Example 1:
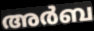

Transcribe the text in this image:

അർബ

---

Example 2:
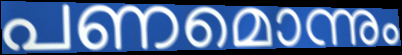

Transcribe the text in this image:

പണമൊന്നും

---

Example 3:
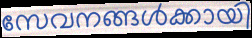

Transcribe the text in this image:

സേവനങ്ങൾക്കായി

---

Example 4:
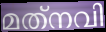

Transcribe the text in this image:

മത്‌നവി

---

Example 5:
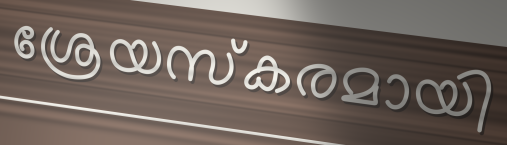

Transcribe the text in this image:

ശ്രേയസ്കരമായി